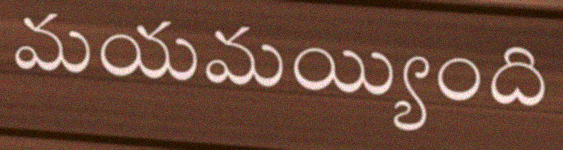
మయమయ్యింది